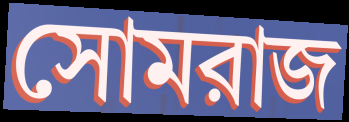
সোমরাজ